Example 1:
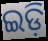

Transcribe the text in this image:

ଇଡ଼ି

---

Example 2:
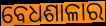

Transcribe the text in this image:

ବେଧଶାଳାର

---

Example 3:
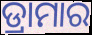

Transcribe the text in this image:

ଡ୍ରାମାର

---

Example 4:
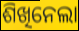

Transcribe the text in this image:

ଶିଖିନେଲା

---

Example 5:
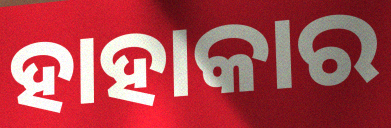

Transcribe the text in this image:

ହାହାକାର